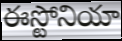
ఈస్టోనియా